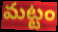
మట్టం